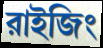
রাইজিং